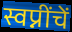
स्वप्नींचें